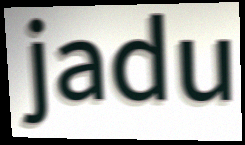
jadu